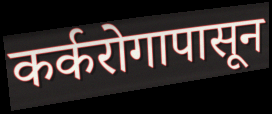
कर्करोगापासून